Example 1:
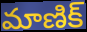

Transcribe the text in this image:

మాణిక్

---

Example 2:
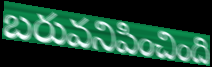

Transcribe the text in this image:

బరువనిపించింది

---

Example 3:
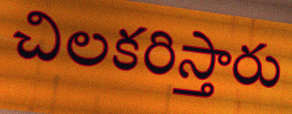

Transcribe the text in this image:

చిలకరిస్తారు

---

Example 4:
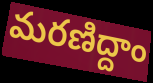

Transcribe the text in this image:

మరణిద్దాం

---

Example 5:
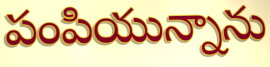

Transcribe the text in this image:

పంపియున్నాను